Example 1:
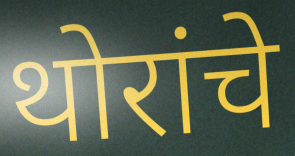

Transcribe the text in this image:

थोरांचे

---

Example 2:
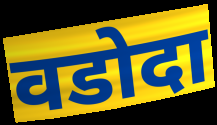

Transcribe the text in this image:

वडोदा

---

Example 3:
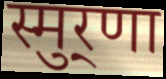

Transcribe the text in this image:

स्मुर्णा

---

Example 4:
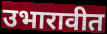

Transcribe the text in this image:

उभारावीत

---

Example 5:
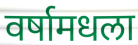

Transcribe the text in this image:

वर्षामधला